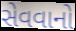
સેવવાનો